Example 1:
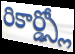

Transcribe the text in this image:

రికార్డ్స్లో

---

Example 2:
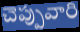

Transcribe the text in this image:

చెప్పువారి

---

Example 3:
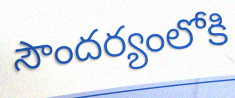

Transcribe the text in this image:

సౌందర్యంలోకి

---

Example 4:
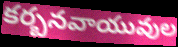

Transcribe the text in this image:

కర్బనవాయువుల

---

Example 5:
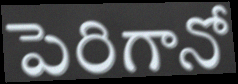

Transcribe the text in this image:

పెరిగానో